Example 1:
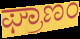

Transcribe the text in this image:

ಘ್ರಾಣಂ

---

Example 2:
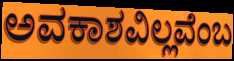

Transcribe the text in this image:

ಅವಕಾಶವಿಲ್ಲವೆಂಬ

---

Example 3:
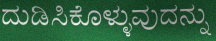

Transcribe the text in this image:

ದುಡಿಸಿಕೊಳ್ಳುವುದನ್ನು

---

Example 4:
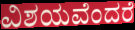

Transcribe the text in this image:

ವಿಶಯವೆಂದರೆ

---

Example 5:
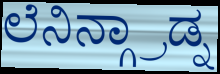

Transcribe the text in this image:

ಲೆನಿನ್ಗ್ರಾಡ್ನ